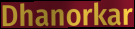
Dhanorkar